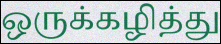
ஒருக்கழித்து